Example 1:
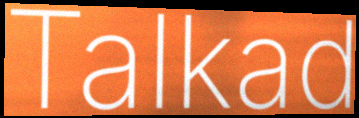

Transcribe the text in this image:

Talkad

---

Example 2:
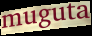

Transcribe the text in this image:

muguta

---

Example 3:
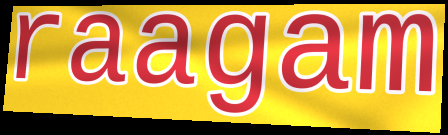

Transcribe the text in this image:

raagam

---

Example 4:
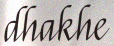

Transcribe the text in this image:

dhakhe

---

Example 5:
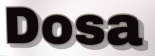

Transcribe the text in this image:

Dosa